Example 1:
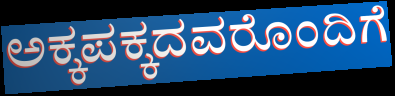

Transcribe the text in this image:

ಅಕ್ಕಪಕ್ಕದವರೊಂದಿಗೆ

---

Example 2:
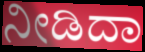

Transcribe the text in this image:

ನೀಡಿದಾ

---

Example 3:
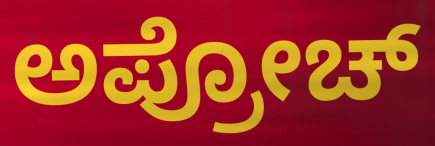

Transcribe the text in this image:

ಅಪ್ರೋಚ್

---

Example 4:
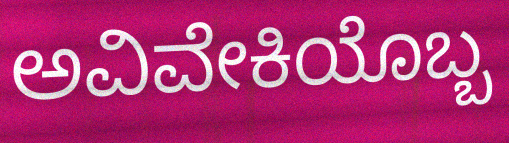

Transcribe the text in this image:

ಅವಿವೇಕಿಯೊಬ್ಬ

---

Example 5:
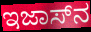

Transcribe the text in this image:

ಇಜಾಸ್‌ನ